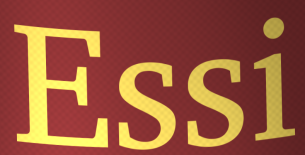
Essi